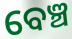
ବେଞ୍ଚ